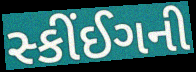
સ્કીંઈગની